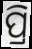
ପ୍ରି